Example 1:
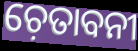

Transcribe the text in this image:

ଚ଼େତାବନୀ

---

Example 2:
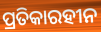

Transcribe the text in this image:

ପ୍ରତିକାରହୀନ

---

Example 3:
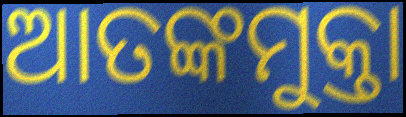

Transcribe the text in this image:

ଆତଙ୍କମୁକ୍ତା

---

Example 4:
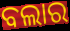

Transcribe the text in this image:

ବଲାର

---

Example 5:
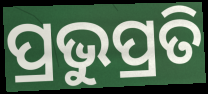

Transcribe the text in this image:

ପ୍ରଭୁପ୍ରତି